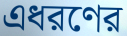
এধরণের